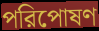
পরিপোষণ